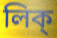
লিক্